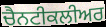
ਚੈਨਟੀਕਲੀਅਰ